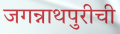
जगन्नाथपुरीची